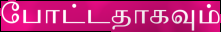
போட்டதாகவும்